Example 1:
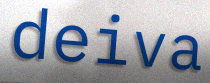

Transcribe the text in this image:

deiva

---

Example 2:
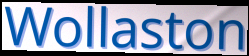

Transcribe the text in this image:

Wollaston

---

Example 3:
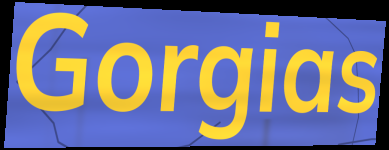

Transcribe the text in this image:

Gorgias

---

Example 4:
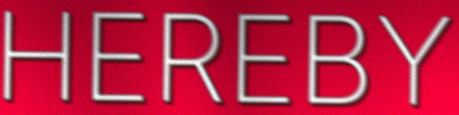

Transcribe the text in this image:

HEREBY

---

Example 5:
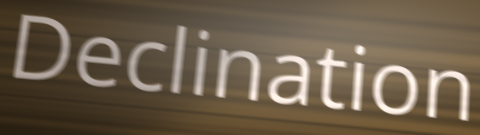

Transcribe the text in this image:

Declination